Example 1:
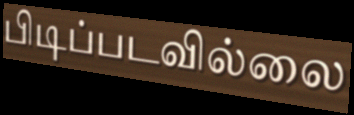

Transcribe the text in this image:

பிடிப்படவில்லை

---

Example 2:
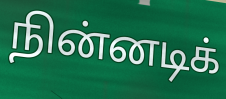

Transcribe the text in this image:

நின்னடிக்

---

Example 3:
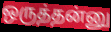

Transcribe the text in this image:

ஒருத்தன்னு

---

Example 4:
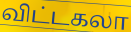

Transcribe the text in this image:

விட்டகலா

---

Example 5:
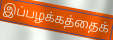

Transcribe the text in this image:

இப்பழக்கத்தைக்